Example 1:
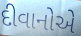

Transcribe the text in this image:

દીવાનોએ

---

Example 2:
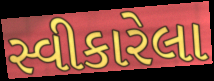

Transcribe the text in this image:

સ્વીકારેલા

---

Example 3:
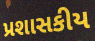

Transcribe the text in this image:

પ્રશાસકીય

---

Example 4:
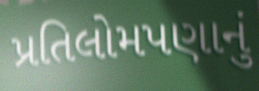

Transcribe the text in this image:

પ્રતિલોમપણાનું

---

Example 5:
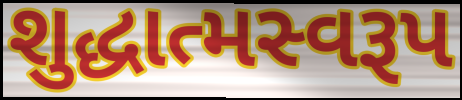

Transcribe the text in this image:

શુદ્ધાત્મસ્વરૂપ